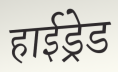
हाईड्रेड